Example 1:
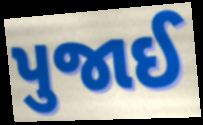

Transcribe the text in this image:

પુજાઈ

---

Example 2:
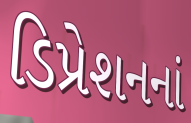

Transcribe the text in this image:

ડિપ્રેશનનાં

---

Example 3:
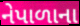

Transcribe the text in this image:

નેપાળાના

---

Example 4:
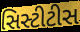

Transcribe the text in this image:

સિસ્ટીટીસ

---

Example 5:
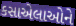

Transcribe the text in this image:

કસાએલાઓને